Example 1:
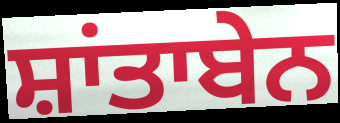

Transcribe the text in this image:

ਸ਼ਾਂਤਾਬੇਨ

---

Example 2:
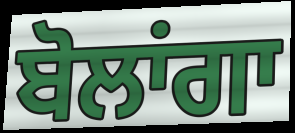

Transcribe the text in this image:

ਬੋਲਾਂਗਾ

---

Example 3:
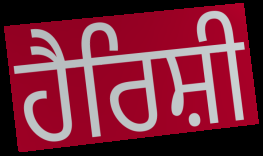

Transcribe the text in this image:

ਹੈਰਿਸ਼ੀ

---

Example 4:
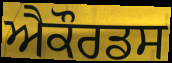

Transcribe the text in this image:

ਐਕੌਰਡਸ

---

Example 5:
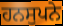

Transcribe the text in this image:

ਹਨਸੁਪਨੇ